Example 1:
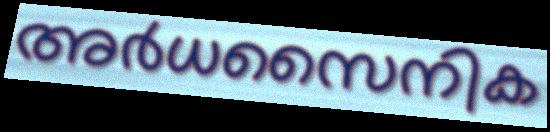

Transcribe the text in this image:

അർധസൈനിക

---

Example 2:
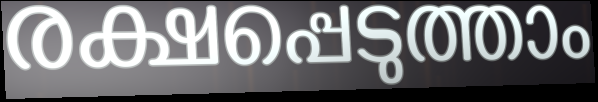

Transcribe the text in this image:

രക്ഷപ്പെടുത്താം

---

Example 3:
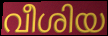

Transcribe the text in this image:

വീശിയ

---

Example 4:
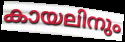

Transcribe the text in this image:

കായലിനും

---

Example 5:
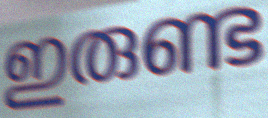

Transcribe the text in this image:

ഇരുണ്ട